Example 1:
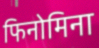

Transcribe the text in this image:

फिनोमिना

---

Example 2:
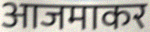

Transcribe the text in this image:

आजमाकर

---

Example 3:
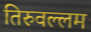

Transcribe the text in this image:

तिरुवल्लम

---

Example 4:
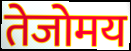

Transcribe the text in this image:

तेजोमय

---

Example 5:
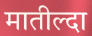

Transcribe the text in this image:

मातील्‍दा